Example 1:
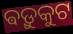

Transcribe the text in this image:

ଵଡ଼ୁକୁଟ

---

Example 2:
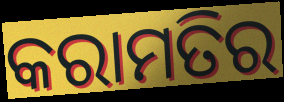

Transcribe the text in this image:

କରାମତିର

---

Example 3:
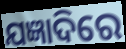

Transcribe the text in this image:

ଯଜ୍ଞାଦିରେ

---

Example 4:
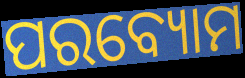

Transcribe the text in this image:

ପରବ୍ୟୋମ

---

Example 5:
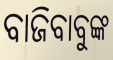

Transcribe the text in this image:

ବାଜିବାବୁଙ୍କ